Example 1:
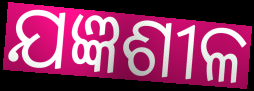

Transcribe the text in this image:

ଯଜ୍ଞଶୀଳ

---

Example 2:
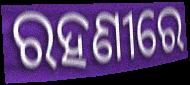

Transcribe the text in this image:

ରହଣୀରେ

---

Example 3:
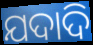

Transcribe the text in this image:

ଯଦାଦି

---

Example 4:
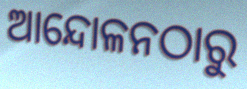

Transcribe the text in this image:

ଆନ୍ଦୋଳନଠାରୁ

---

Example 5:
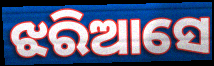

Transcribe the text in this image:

ଝରିଆସେ